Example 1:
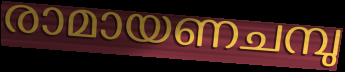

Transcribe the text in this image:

രാമായണചമ്പു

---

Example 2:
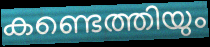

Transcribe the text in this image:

കണ്ടെത്തിയും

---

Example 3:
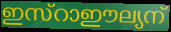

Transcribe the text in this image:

ഇസ്റാഈല്യന്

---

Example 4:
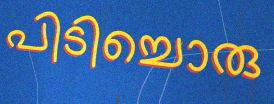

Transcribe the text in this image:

പിടിച്ചൊരു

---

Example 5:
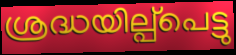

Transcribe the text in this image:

ശ്രദ്ധയില്പ്പെട്ടു